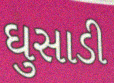
ઘુસાડી